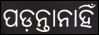
ପଡ଼ନ୍ତାନାହିଁ